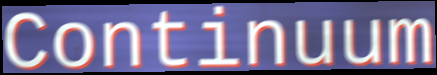
Continuum